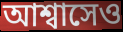
আশ্বাসেও